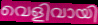
വെളിവായി